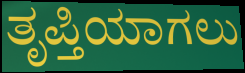
ತೃಪ್ತಿಯಾಗಲು